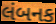
લંબનક